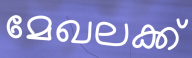
മേഖലക്ക്